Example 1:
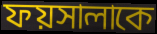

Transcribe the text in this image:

ফয়সালাকে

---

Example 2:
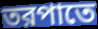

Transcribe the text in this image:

তরপাতে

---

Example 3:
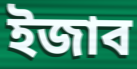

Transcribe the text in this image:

ইজাব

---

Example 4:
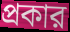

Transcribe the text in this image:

প্রকার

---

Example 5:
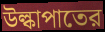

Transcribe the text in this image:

উল্কাপাতের